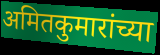
अमितकुमारांच्या